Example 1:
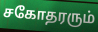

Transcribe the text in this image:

சகோதரரும்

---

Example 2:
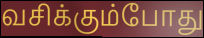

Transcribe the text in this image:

வசிக்கும்போது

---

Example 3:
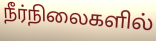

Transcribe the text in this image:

நீர்நிலைகளில்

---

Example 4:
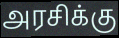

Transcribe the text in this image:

அரசிக்கு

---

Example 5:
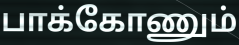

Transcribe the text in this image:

பாக்கோணும்